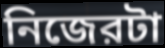
নিজেরটা